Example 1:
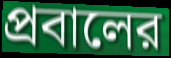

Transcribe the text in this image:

প্রবালের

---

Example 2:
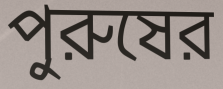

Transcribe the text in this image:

পুরুষের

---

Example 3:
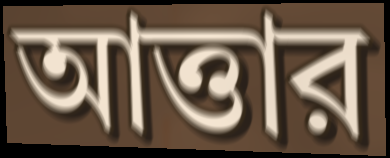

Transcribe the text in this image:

আত্তার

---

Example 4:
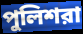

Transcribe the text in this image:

পুলিশরা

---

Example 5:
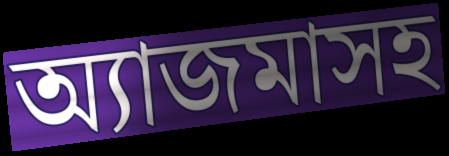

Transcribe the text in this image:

অ্যাজমাসহ